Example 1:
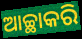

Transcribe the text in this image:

ଆଚ୍ଛାକରି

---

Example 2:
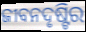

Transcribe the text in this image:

ଜୀବନଦୃଷ୍ଟିର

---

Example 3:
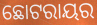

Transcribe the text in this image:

ଛୋଟରାୟର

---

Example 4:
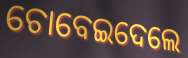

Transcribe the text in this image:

ଚୋବେଇଦେଲେ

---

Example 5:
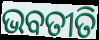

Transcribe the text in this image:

ଭବତୀତି